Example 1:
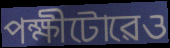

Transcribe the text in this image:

পক্ষীটোৱেও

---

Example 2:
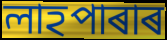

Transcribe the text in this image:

লাহপাৰাৰ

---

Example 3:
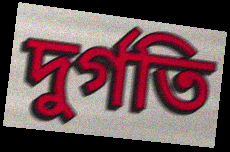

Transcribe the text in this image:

দুৰ্গতি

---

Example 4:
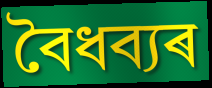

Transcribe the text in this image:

বৈধব্যৰ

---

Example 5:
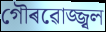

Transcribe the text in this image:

গৌৰৱোজ্জ্বল